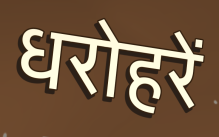
धरोहरें